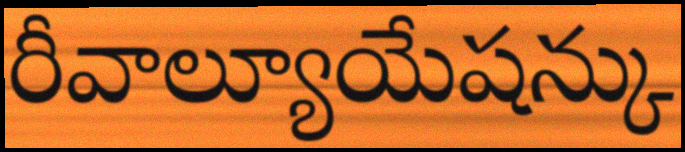
రీవాల్యూయేషన్కు